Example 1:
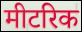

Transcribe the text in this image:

मीटरिक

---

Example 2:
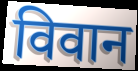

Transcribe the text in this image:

विवान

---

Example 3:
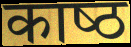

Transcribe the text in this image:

काष्‍ठ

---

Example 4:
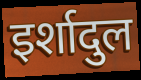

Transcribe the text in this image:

इर्शादुल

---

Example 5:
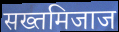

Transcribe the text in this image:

सख्तमिजाज